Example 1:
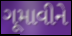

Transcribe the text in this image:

ગૂમાવીને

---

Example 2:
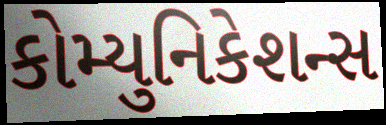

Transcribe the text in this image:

કોમ્યુનિકેશન્સ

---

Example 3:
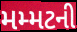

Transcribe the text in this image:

મમ્મટની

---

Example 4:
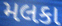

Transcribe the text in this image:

મલકા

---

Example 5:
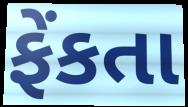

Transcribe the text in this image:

ફેંકતા